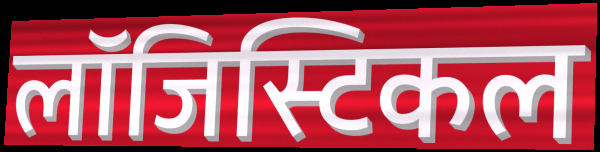
लॉजिस्टिकल